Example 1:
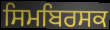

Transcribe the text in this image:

ਸਿਮਬਿਰਸਕ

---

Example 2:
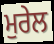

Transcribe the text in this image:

ਮੁਰੇਲ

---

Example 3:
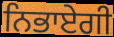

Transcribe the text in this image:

ਨਿਭਾਏਗੀ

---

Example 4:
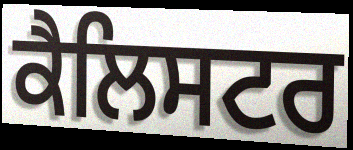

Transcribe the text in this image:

ਕੈਲਿਸਟਰ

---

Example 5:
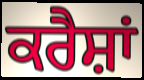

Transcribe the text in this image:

ਕਰੈਸ਼ਾਂ